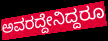
ಅವರದ್ದೇನಿದ್ದರೂ